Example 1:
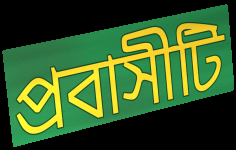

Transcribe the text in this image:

প্রবাসীটি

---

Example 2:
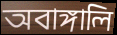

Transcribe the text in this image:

অবাঙ্গালি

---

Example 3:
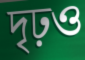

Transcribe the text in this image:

দৃঢ়ও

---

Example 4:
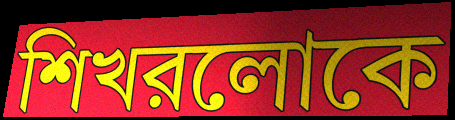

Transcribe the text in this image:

শিখরলোকে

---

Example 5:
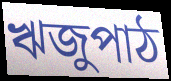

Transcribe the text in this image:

ঋজুপাঠ